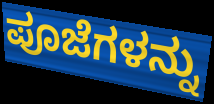
ಪೂಜೆಗಳನ್ನು